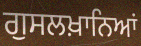
ਗੁਸਲਖ਼ਾਨਿਆਂ